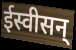
ईस्वीसन्